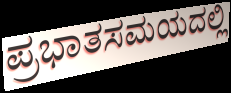
ಪ್ರಭಾತಸಮಯದಲ್ಲಿ